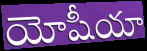
యోషీయా